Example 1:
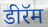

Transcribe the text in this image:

डीरॅम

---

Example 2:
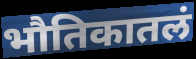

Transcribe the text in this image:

भौतिकातलं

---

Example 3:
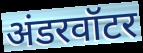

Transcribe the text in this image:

अंडरवॉटर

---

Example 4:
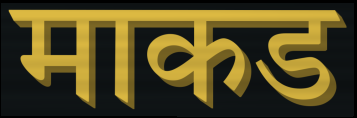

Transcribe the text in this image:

माकड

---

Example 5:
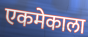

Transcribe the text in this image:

एकमेकाला